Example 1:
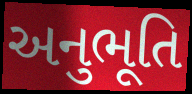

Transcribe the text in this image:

અનુભૂતિ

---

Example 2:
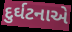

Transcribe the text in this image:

દુર્ઘટનાએ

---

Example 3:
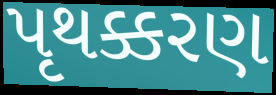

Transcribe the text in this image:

પૃથક્કરણ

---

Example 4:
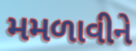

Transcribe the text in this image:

મમળાવીને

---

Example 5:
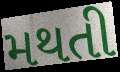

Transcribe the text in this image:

મથતી